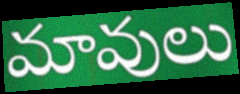
మావులు